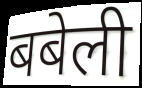
बबेली